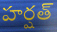
హర్షత్